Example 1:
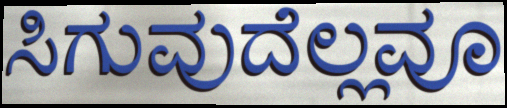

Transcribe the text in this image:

ಸಿಗುವುದೆಲ್ಲವೂ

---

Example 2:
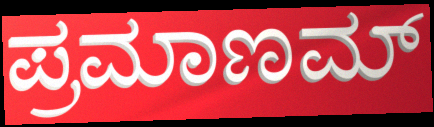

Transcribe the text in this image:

ಪ್ರಮಾಣಮ್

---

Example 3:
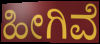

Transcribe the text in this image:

ಹೀಗಿವೆ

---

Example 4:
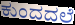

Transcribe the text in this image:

ಕುಂದದಲೆ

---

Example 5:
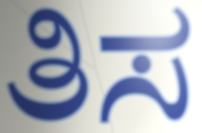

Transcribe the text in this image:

ತಿಸ